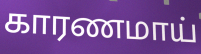
காரணமாய்